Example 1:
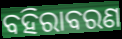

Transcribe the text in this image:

ବହିରାବରଣ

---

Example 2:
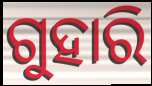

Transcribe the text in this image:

ଗୁହାରି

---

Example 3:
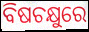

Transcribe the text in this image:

ବିଷଚକ୍ଷୁରେ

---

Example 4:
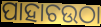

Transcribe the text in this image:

ପାହାଚଉଠା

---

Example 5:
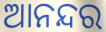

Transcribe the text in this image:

ଆନନ୍ଦର